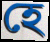
হে